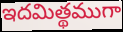
ఇదమిత్థముగా